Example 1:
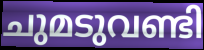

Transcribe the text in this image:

ചുമടുവണ്ടി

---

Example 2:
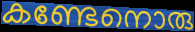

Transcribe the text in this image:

കണ്ടേനൊരു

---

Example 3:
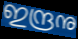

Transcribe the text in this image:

ഇന്ദ്രനു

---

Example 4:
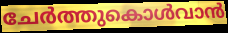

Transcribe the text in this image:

ചേർത്തുകൊൾവാൻ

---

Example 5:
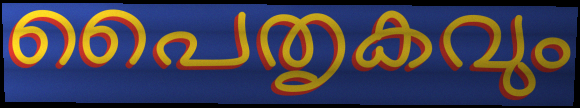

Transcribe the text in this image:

പൈതൃകവും